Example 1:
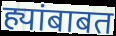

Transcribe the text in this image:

ह्यांबाबत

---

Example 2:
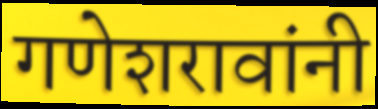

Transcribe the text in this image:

गणेशरावांनी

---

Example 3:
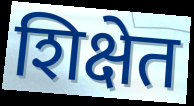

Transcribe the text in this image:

शिक्षेत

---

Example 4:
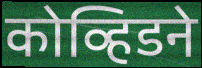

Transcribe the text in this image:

कोव्हिडने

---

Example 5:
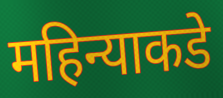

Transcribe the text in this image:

महिन्याकडे